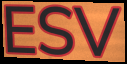
ESV